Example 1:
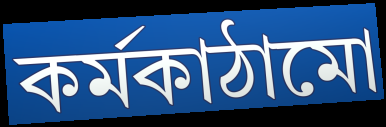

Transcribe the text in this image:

কর্মকাঠামো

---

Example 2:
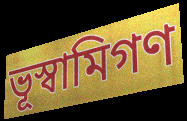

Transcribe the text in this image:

ভূস্বামিগণ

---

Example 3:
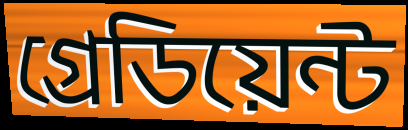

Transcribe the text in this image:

গ্রেডিয়েন্ট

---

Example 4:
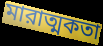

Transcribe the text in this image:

মারাত্মকতা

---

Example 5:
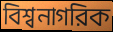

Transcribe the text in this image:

বিশ্বনাগরিক